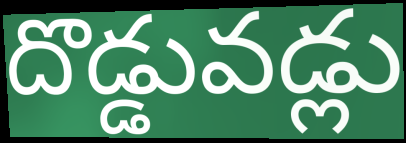
దొడ్డువడ్లు